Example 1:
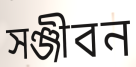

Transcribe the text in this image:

সঞ্জীবন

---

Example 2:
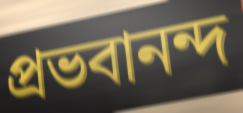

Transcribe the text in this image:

প্রভবানন্দ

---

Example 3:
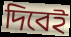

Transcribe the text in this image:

দিবেই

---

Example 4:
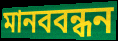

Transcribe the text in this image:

মানববন্ধন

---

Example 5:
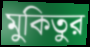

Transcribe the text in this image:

মুকিতুর